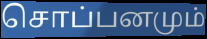
சொப்பனமும்